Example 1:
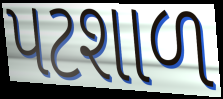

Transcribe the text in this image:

પટશાળ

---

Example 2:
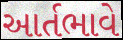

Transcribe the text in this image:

આર્તભાવે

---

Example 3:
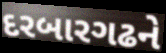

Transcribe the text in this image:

દરબારગઢને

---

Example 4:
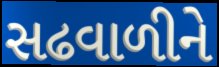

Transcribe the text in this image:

સઢવાળીને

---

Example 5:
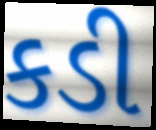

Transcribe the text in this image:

કડી